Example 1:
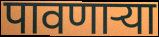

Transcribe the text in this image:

पावणाऱ्या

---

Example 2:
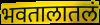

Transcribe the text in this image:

भवतालातलं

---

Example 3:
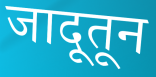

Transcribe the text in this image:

जादूतून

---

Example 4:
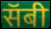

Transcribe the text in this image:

सॅबी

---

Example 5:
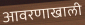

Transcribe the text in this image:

आवरणाखाली